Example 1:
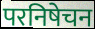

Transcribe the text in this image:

परनिषेचन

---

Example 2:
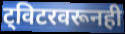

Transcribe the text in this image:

ट्विटरवरूनही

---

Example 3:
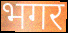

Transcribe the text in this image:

भगर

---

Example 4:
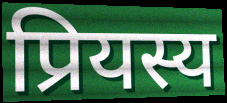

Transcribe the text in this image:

प्रियस्य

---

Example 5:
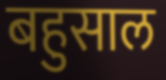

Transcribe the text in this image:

बहुसाल